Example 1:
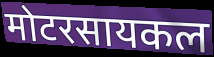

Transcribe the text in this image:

मोटरसायकल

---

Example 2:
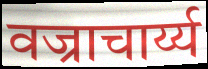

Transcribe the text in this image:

वज्राचार्य्य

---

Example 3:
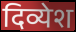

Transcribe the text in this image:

दिव्येश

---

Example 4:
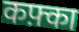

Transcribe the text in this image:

कफ़्का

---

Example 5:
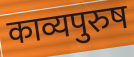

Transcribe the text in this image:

काव्यपुरुष